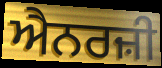
ਐਨਰਜ਼ੀ